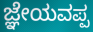
ಜ್ಞೇಯವಪ್ಪ